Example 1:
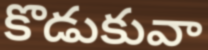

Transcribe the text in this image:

కొడుకువా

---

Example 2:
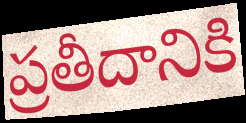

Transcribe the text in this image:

ప్రతీదానికి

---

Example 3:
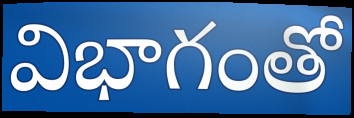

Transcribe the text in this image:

విభాగంతో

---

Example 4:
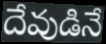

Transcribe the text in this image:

దేవుడినే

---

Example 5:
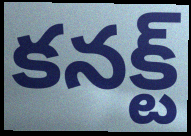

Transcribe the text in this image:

కనక్ట్